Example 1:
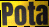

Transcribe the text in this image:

Pota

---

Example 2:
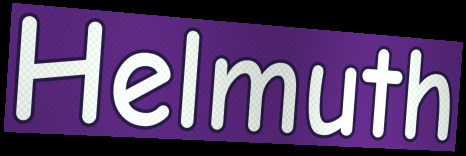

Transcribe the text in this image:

Helmuth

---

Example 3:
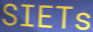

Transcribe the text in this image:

SIETs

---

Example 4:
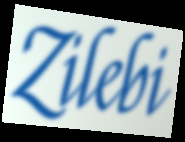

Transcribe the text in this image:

Zilebi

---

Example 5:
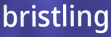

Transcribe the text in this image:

bristling